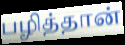
பழித்தான்